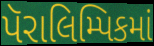
પૅરાલિમ્પિકમાં